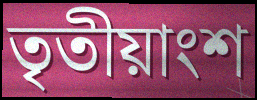
তৃতীয়াংশ